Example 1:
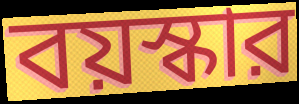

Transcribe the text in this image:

বয়স্কার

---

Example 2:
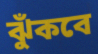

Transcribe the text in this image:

ঝুঁকবে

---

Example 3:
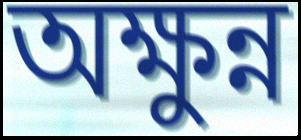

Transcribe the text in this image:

অক্ষুন্ন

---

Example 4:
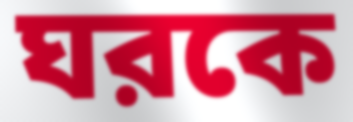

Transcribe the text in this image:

ঘরকে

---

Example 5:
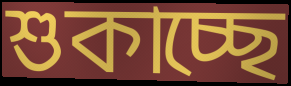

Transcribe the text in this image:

শুকাচ্ছে